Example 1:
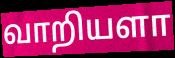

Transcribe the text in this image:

வாறியளா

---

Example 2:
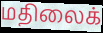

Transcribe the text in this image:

மதிலைக்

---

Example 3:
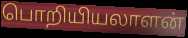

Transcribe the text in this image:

பொறியியலாளன்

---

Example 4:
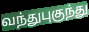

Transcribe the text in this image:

வந்துபுகுந்து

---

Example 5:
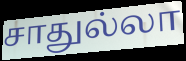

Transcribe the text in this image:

சாதுல்லா